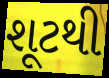
શૂટથી